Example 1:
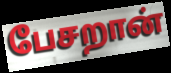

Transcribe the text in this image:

பேசறான்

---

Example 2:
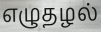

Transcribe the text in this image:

எழுதழல்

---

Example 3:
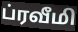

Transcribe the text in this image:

ப்ரவீமி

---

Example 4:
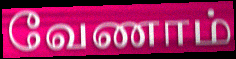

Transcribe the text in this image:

வேணாம்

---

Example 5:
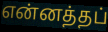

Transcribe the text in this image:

என்னத்தப்